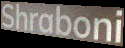
Shraboni